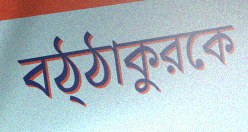
বঠ্ঠাকুরকে